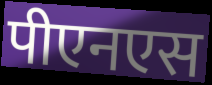
पीएनएस